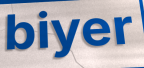
biyer